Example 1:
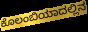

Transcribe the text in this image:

ಕೊಲಂಬಿಯಾದಲ್ಲಿನ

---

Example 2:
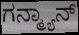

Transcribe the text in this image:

ಗನ್ಮ್ಯಾನ್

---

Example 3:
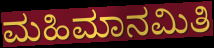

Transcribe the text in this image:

ಮಹಿಮಾನಮಿತಿ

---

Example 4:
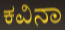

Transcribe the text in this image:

ಕವಿನಾ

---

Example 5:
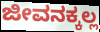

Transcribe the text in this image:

ಜೀವನಕ್ಕಲ್ಲ